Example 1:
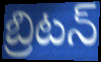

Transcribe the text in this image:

బ్రిటన్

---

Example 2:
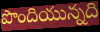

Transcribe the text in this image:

పొందియున్నది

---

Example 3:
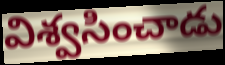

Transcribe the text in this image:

విశ్వసించాడు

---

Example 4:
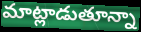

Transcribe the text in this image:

మాట్లాడుతూన్నా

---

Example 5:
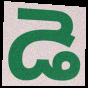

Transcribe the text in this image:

డె